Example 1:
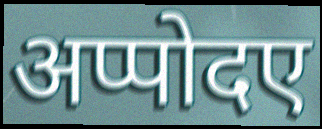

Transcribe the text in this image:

अप्पोदए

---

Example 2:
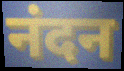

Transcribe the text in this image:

नंदन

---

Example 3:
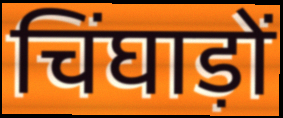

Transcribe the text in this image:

चिंघाड़ों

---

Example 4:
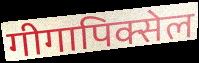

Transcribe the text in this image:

गीगापिक्सेल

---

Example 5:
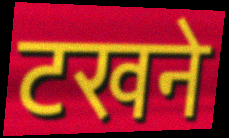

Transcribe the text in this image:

टखने